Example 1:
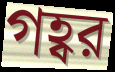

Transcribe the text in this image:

গহ্বর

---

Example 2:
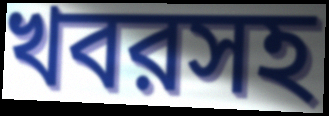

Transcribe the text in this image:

খবরসহ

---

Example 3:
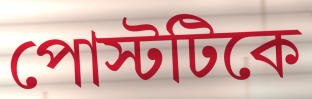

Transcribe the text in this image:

পোস্টটিকে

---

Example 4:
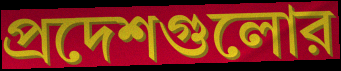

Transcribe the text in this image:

প্রদেশগুলোর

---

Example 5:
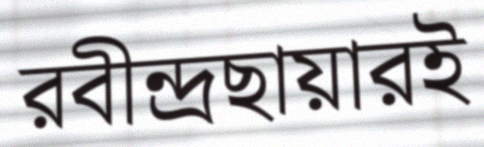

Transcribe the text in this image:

রবীন্দ্রছায়ারই